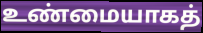
உண்மையாகத்